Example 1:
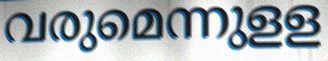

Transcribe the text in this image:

വരുമെന്നുളള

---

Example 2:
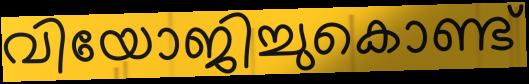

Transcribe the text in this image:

വിയോജിച്ചുകൊണ്ട്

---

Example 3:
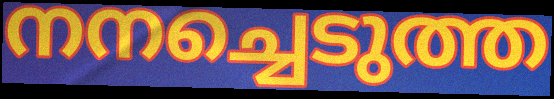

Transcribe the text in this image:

നനച്ചെടുത്ത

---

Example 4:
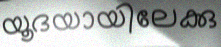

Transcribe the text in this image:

യൂദയായിലേക്കു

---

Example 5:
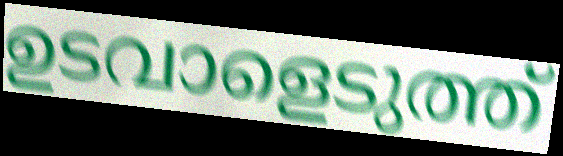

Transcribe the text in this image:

ഉടവാളെടുത്ത്